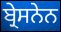
ਬ੍ਰੇਸਨੇਨ